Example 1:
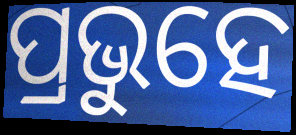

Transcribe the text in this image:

ପ୍ରଭୁହେ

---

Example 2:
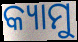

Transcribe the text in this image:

କ୍ୟାମୁ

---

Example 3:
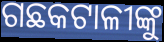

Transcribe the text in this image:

ଗଛକଟାଳୀଙ୍କୁ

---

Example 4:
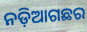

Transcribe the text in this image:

ନଡ଼ିଆଗଛର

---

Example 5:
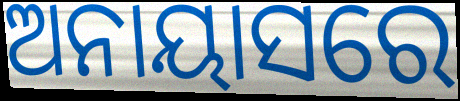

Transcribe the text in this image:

ଅନାୟାସରେ